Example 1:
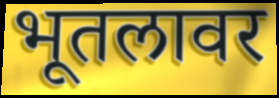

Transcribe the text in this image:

भूतलावर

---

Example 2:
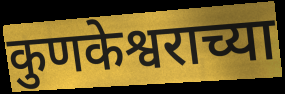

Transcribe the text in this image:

कुणकेश्वराच्या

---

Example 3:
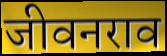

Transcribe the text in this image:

जीवनराव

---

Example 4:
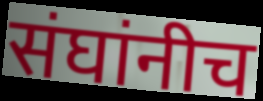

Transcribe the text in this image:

संघांनीच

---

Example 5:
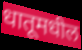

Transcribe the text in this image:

धातूमधील